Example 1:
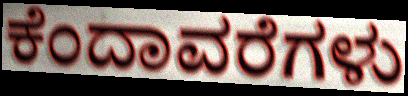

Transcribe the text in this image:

ಕೆಂದಾವರೆಗಳು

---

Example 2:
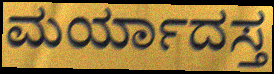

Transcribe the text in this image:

ಮರ್ಯಾದಸ್ತ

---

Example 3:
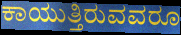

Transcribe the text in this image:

ಕಾಯುತ್ತಿರುವವರೂ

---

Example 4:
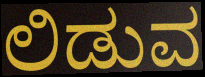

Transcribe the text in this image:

ಲಿಡುವ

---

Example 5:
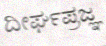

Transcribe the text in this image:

ದೀರ್ಘಪ್ರಜ್ಞ